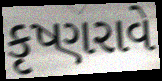
કૃષ્ણરાવે